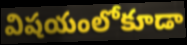
విషయంలోకూడా